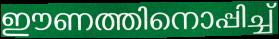
ഈണത്തിനൊപ്പിച്ച്